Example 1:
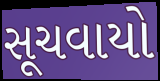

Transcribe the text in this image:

સૂચવાયો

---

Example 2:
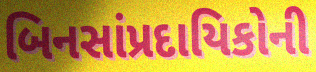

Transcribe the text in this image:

બિનસાંપ્રદાયિકોની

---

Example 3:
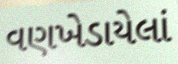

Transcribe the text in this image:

વણખેડાયેલાં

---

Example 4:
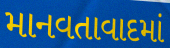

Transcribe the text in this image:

માનવતાવાદમાં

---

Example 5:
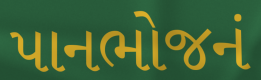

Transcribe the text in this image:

પાનભોજનં